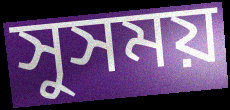
সুসময়